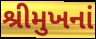
શ્રીમુખનાં